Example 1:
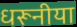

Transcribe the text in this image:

धरूनीया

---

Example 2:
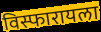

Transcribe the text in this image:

विस्फारायला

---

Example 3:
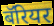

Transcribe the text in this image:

बॅरियर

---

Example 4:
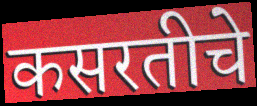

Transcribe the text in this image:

कसरतीचे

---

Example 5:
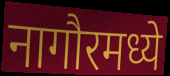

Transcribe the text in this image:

नागौरमध्ये